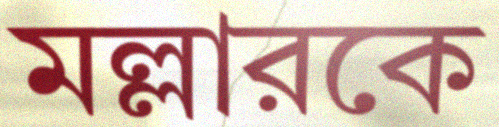
মল্লারকে